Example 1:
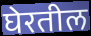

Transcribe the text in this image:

घेरतील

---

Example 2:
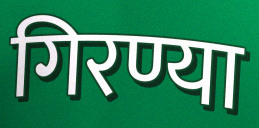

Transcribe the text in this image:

गिरण्या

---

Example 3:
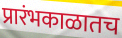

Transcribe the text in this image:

प्रारंभकाळातच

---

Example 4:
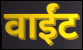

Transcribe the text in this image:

वाईंट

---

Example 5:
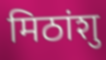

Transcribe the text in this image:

मिठांशु